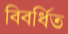
বিবর্ধিত